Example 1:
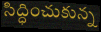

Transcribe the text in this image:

సిద్ధించుకున్న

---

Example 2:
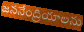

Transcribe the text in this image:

జననేంద్రియాలను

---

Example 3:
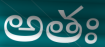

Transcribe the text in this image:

అతః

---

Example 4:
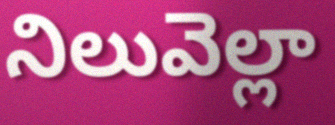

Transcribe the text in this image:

నిలువెల్లా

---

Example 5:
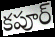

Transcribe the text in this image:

కపూర్